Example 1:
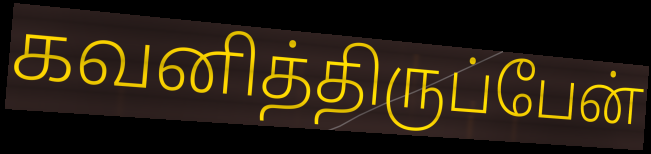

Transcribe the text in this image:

கவனித்திருப்பேன்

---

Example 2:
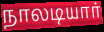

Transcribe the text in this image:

நாலடியார்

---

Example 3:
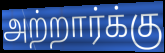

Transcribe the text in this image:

அற்றார்க்கு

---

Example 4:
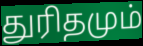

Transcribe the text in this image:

துரிதமும்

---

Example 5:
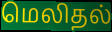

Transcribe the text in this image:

மெலிதல்